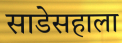
साडेसहाला